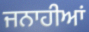
ਜਨਾਹੀਆਂ